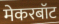
मेकरबॉट